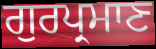
ਗੁਰਪ੍ਰਮਾਣ